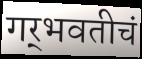
गर्भवतीचं